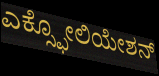
ಎಕ್ಸ್ಫೋಲಿಯೇಶನ್